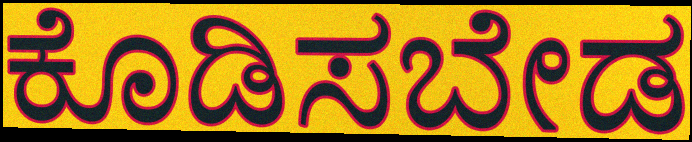
ಕೊಡಿಸಬೇಡ